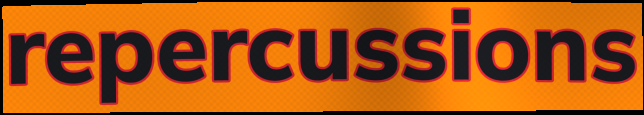
repercussions